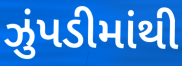
ઝુંપડીમાંથી